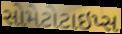
સોમેટોટાઇપ્સ